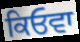
ਕਿਓਵਾ